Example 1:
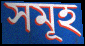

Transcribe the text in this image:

সমূহ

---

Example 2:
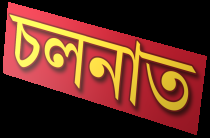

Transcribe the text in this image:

চলনাত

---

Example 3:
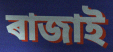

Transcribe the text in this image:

ৰাজাই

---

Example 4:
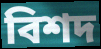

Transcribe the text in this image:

বিশদ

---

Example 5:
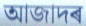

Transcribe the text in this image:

আজাদৰ